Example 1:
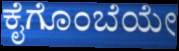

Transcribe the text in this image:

ಕೈಗೊಂಬೆಯೇ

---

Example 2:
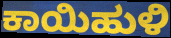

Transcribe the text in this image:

ಕಾಯಿಹುಳಿ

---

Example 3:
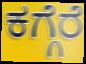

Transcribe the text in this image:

ಕಗ್ಗೆರೆ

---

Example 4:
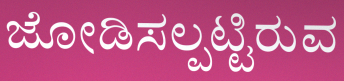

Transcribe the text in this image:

ಜೋಡಿಸಲ್ಪಟ್ಟಿರುವ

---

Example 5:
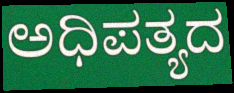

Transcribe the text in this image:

ಅಧಿಪತ್ಯದ